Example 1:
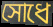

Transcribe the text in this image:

সোধে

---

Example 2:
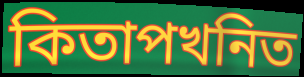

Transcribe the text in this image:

কিতাপখনিত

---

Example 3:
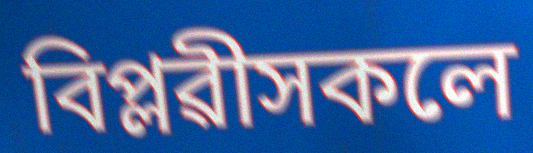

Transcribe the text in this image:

বিপ্লৱীসকলে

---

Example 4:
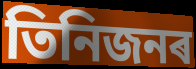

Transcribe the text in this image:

তিনিজনৰ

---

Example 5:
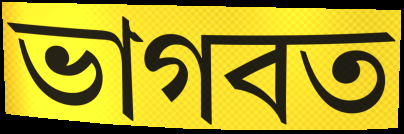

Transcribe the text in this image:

ভাগবত